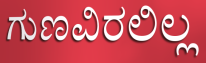
ಗುಣವಿರಲಿಲ್ಲ